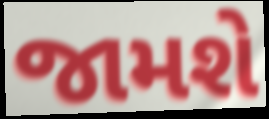
જામશે